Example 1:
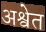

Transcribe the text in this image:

अश्वेत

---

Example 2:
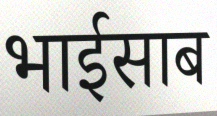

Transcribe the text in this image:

भाईसाब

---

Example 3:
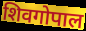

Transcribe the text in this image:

शिवगोपाल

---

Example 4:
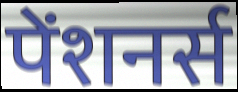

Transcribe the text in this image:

पेंशनर्स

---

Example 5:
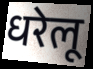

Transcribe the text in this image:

धरेलू